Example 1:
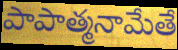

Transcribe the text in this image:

పాపాత్మనామేతే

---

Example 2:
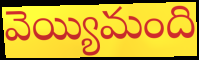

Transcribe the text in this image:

వెయ్యిమంది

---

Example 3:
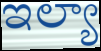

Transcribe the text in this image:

ఇల్యా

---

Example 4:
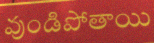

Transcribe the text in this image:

వుండిపోతాయి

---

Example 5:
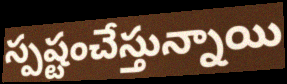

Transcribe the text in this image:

స్పష్టంచేస్తున్నాయి